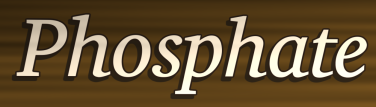
Phosphate